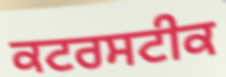
ਕਟਰਸਟੀਕ